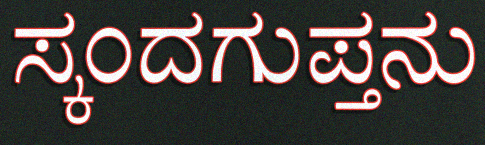
ಸ್ಕಂದಗುಪ್ತನು